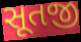
સૂતજી